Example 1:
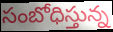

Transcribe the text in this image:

సంబోధిస్తున్న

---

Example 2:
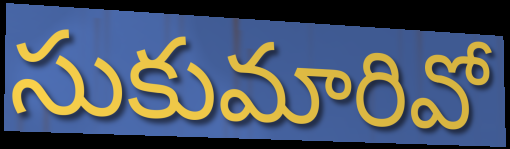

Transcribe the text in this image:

సుకుమారివో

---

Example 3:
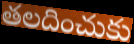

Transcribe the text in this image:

తలదించుకు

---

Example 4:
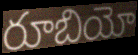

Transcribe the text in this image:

రూబియో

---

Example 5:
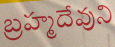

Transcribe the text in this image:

బ్రహ్మదేవుని